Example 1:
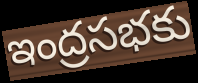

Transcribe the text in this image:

ఇంద్రసభకు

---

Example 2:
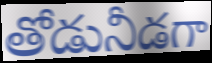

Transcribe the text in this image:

తోడునీడగా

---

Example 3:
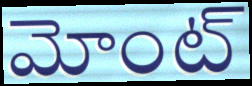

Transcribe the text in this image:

మోంట్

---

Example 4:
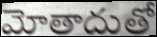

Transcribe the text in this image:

మోతాదుతో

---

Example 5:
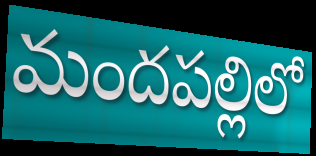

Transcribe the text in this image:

మందపల్లిలో